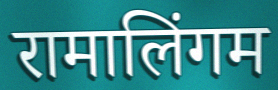
रामालिंगम